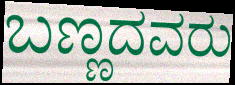
ಬಣ್ಣದವರು